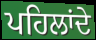
ਪਹਿਲਾਂਦੇ